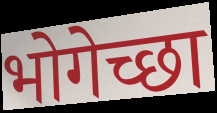
भोगेच्छा